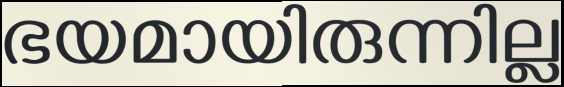
ഭയമായിരുന്നില്ല